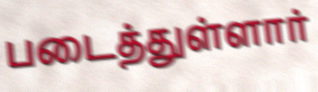
படைத்துள்ளார்